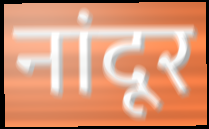
नांदूर